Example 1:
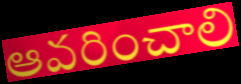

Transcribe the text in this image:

ఆవరించాలి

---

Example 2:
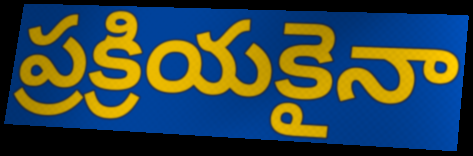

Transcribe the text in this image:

ప్రక్రియకైనా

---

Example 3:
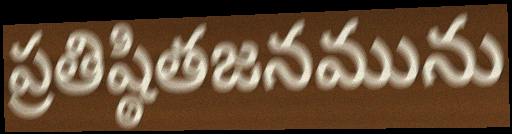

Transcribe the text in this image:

ప్రతిష్ఠితజనమును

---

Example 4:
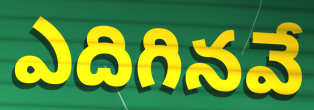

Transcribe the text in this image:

ఎదిగినవే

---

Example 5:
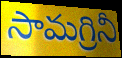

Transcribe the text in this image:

సామగ్రినీ